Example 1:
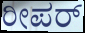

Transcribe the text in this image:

ರೀಪರ್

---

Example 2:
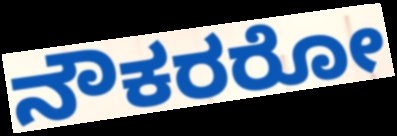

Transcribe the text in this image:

ನೌಕರರೋ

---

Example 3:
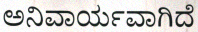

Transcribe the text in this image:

ಅನಿವಾರ್ಯವಾಗಿದೆ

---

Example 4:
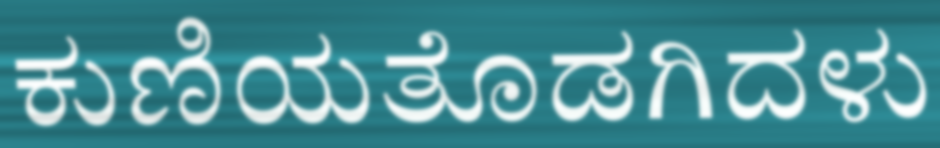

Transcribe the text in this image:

ಕುಣಿಯತೊಡಗಿದಳು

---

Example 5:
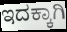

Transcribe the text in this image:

ಇದಕ್ಕಾಗಿ